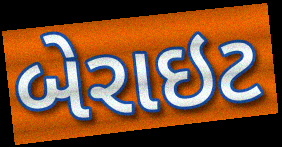
બેરાઇટ